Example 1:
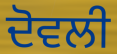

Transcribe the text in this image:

ਦੋਵਲੀ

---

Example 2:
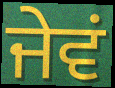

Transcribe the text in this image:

ਜੇਵਂ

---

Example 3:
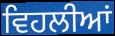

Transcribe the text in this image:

ਵਿਹਲੀਆਂ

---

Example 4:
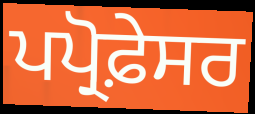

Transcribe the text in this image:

ਪਪ੍ਰੋਫ਼ੇਸਰ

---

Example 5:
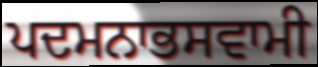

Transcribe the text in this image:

ਪਦਮਨਾਭਸਵਾਮੀ